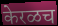
केरळच